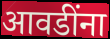
आवडींना